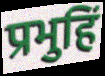
प्रभुहिं